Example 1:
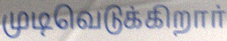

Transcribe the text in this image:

முடிவெடுக்கிறார்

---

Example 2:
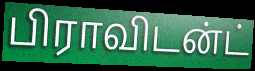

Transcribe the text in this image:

பிராவிடன்ட்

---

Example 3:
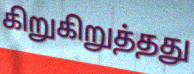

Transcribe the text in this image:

கிறுகிறுத்தது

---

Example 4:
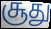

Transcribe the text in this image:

சூது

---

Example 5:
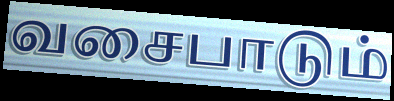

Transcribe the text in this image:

வசைபாடும்